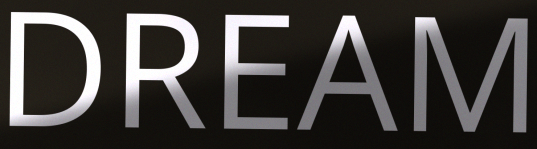
DREAM